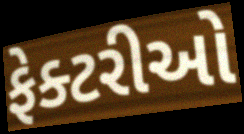
ફેક્ટરીઓ